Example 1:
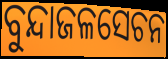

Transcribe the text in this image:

ବୁନ୍ଦାଜଳସେଚନ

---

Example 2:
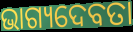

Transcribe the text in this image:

ଭାଗ୍ୟଦେବତା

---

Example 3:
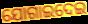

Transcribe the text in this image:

ଯୋଗାଇଦେଇ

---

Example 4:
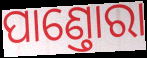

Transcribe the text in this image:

ପାଣ୍ତୋରା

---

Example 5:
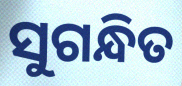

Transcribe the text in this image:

ସୁଗନ୍ଧିତ